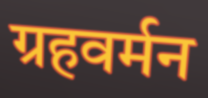
ग्रहवर्मन